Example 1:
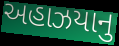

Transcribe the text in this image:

અહાઝયાનુ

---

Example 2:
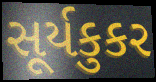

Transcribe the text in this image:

સૂર્યકુકર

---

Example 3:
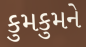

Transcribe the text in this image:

કુમકુમને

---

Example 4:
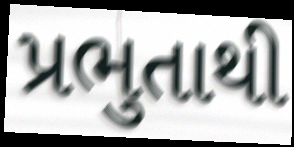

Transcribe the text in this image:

પ્રભુતાથી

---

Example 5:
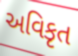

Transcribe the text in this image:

અવિકૃત